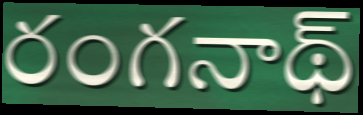
రంగనాథ్